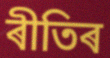
ৰীতিৰ